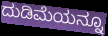
ದುಡಿಮೆಯನ್ನೂ